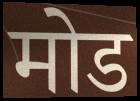
मोड